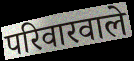
परिवारवाले